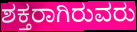
ಶಕ್ತರಾಗಿರುವರು